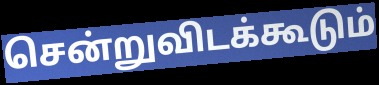
சென்றுவிடக்கூடும்